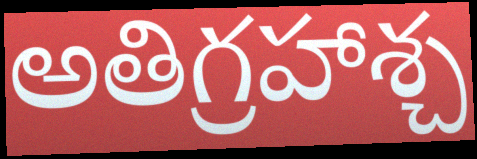
అతిగ్రహాశ్చ